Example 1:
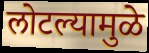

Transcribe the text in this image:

लोटल्यामुळे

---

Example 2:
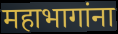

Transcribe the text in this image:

महाभागांना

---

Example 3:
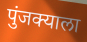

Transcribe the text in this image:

पुंजक्याला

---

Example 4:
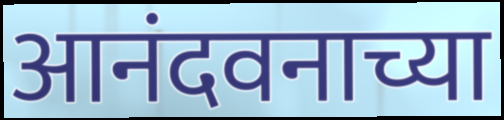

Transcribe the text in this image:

आनंदवनाच्या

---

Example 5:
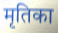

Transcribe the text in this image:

मृतिका